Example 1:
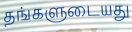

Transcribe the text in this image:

தங்களுடையது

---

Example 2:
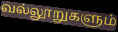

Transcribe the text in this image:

வல்லூறுகளும்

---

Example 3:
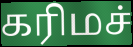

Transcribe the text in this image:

கரிமச்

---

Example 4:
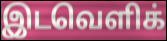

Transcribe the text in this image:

இடவெளிக்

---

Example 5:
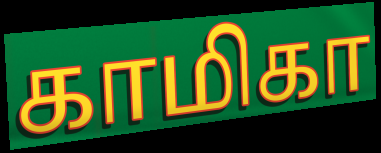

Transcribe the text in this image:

காமிகா